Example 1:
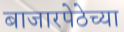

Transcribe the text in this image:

बाजारपेठेच्या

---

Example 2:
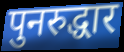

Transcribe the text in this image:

पुनरुद्धार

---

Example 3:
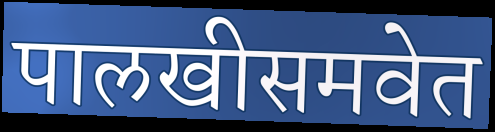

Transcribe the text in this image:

पालखीसमवेत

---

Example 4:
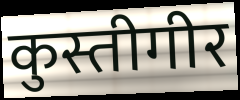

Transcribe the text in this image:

कुस्तीगीर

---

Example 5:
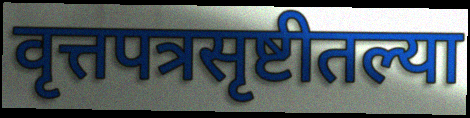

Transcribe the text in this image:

वृत्तपत्रसृष्टीतल्या